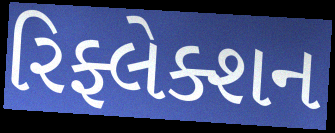
રિફ્લેક્શન